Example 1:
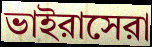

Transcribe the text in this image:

ভাইরাসেরা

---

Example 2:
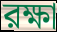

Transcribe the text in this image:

রক্ষা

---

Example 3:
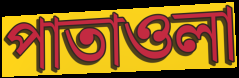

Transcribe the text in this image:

পাতাওলা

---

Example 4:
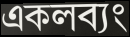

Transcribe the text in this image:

একলব্যং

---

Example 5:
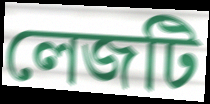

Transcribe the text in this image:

লেজটি